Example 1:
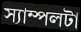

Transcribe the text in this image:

স্যাম্পলটা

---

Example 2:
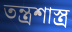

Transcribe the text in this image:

তন্ত্রশাস্ত্র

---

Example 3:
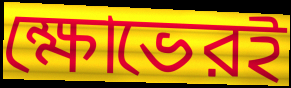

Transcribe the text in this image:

ক্ষোভেরই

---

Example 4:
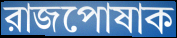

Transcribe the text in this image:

রাজপোষাক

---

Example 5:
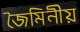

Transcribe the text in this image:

জৈমিনীয়